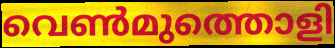
വെൺമുത്തൊളി